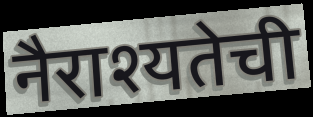
नैराश्यतेची